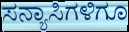
ಸನ್ಯಾಸಿಗಳಿಗೂ